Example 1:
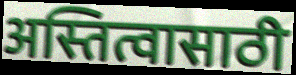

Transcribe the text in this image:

अस्तित्वासाठी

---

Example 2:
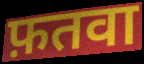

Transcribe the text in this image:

फ़तवा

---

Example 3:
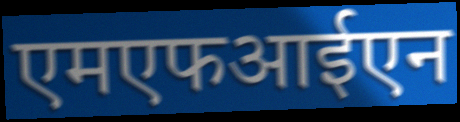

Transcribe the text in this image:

एमएफआईएन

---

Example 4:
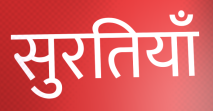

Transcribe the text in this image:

सुरतियाँ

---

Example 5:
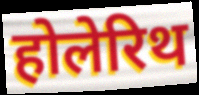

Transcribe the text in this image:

होलेरिथ